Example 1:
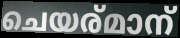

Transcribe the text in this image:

ചെയര്മാന്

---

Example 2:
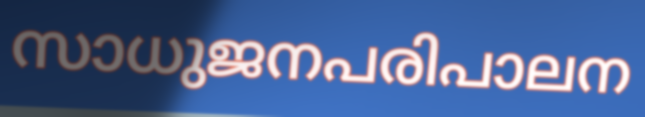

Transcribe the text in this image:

സാധുജനപരിപാലന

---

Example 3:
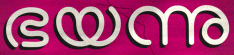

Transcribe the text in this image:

ഭയന്നു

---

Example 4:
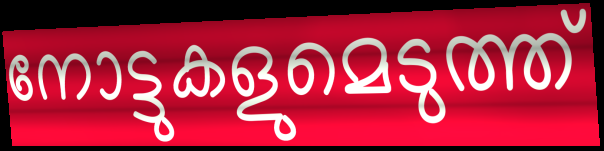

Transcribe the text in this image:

നോട്ടുകളുമെടുത്ത്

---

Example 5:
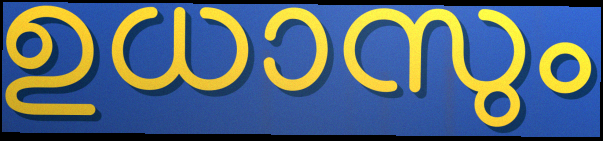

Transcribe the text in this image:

ഉധാസും